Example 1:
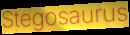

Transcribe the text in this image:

Stegosaurus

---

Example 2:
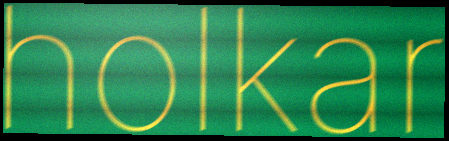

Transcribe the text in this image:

holkar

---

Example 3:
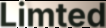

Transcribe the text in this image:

Limted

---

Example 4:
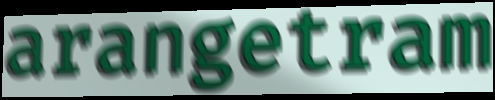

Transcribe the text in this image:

arangetram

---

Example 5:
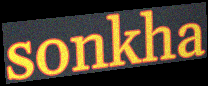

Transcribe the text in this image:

sonkha